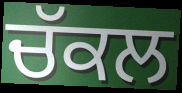
ਚੱਕਲ